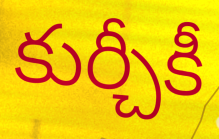
కుర్చీకీ